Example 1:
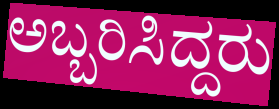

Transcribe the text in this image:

ಅಬ್ಬರಿಸಿದ್ದರು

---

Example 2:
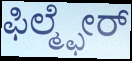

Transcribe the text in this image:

ಫಿಲ್ಮ್ಫೇರ್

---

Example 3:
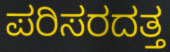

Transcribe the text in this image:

ಪರಿಸರದತ್ತ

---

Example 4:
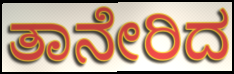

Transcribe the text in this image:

ತಾನೇರಿದ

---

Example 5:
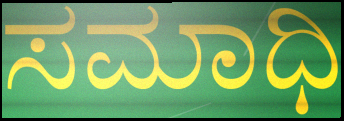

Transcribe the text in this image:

ಸಮಾಧಿ